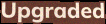
Upgraded